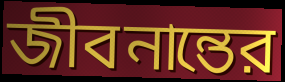
জীবনান্তের